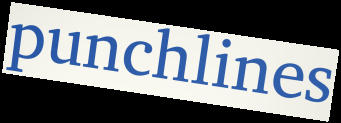
punchlines